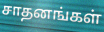
சாதனங்கள்